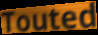
Touted